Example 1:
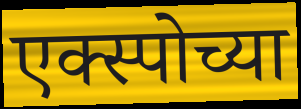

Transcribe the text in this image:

एक्स्पोच्या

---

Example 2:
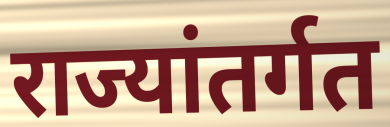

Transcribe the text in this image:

राज्यांतर्गत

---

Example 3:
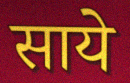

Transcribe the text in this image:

साये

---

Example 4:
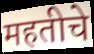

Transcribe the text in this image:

महतीचे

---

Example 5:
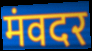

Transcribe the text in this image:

मंवदर